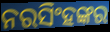
ନରସିଂହଙ୍କର